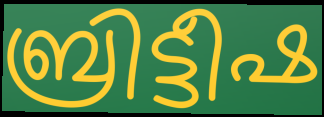
ബ്രിട്ടീഷ